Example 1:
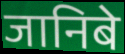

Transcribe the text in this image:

जानिबे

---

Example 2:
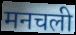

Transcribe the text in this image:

मनचली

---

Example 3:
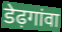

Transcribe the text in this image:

डेढ़गांवा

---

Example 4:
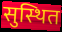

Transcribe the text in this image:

सुस्थित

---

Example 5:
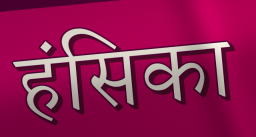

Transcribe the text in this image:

हंसिका